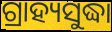
ଗ୍ରାହ୍ୟସୁଦ୍ଧା